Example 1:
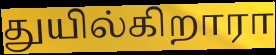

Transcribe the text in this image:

துயில்கிறாரா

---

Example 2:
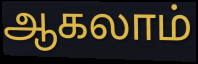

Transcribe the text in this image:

ஆகலாம்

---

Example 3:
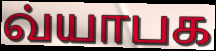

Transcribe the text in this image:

வ்யாபக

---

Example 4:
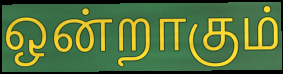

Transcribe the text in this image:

ஒன்றாகும்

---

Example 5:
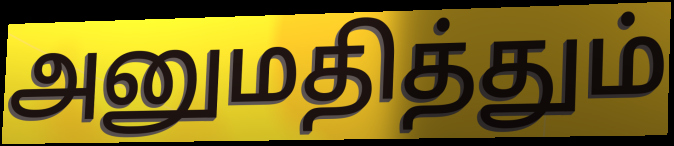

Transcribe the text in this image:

அனுமதித்தும்